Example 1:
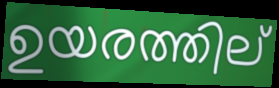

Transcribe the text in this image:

ഉയരത്തില്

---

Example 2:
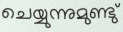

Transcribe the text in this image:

ചെയ്യുന്നുമുണ്ടു്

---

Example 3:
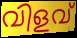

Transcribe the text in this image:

വിളവ്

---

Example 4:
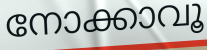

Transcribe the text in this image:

നോക്കാവൂ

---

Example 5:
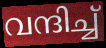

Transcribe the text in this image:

വന്ദിച്ച്